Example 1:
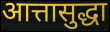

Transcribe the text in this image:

आत्तासुद्धा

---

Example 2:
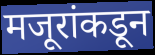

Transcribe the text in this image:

मजूरांकडून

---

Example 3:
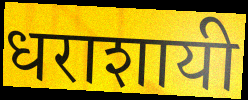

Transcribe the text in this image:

धराशायी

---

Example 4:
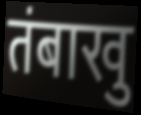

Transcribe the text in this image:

तंबाखु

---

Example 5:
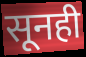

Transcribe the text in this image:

सूनही